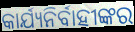
କାର୍ଯ୍ୟନିର୍ବାହୀଙ୍କର